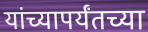
यांच्यापर्यंतच्या